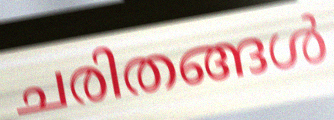
ചരിതങ്ങൾ